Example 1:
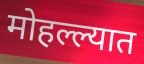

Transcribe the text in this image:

मोहल्ल्यात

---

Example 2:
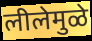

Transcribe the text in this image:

लीलेमुळे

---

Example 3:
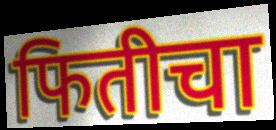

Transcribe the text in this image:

फितीचा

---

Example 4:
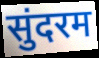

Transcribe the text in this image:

सुंदरम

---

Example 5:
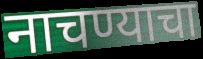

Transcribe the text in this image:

नाचण्याचा